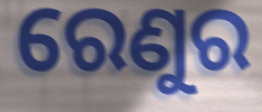
ରେଣୁର